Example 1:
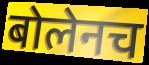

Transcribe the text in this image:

बोलेनच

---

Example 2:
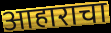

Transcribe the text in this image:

आहाराचा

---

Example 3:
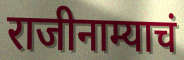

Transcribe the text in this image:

राजीनाम्याचं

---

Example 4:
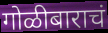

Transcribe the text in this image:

गोळीबाराचं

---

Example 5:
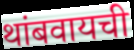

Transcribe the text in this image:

थांबवायची